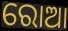
ରୋଆ